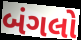
બંગલો